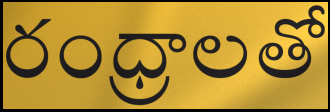
రంధ్రాలతో